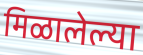
मिळालेल्या